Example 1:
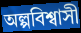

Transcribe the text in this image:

অল্পবিশ্বাসী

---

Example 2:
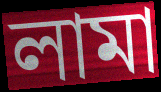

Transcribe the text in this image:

লামা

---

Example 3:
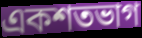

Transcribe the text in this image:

একশতভাগ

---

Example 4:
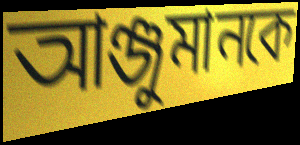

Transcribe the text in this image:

আঞ্জুমানকে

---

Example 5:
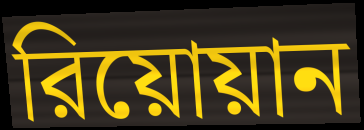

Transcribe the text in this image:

রিয়োয়ান